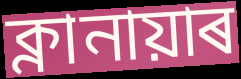
ক্নানায়াৰ